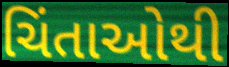
ચિંતાઓથી